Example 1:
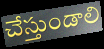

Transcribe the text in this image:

చేస్తుండాలి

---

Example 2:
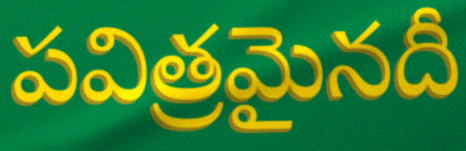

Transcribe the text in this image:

పవిత్రమైనదీ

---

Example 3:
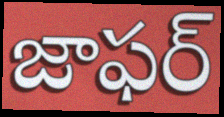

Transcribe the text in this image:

జాఫర్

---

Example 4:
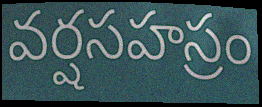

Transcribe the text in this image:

వర్షసహస్రం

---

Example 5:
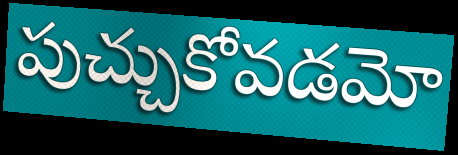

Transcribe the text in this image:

పుచ్చుకోవడమో